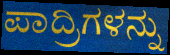
ಪಾದ್ರಿಗಳನ್ನು